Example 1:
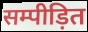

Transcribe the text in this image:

सम्पीड़ित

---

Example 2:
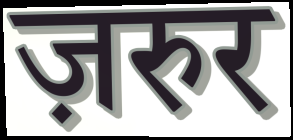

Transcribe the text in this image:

ज़रुर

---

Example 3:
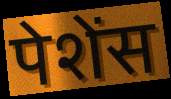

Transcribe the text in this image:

पेशेंस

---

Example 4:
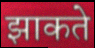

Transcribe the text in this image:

झाकते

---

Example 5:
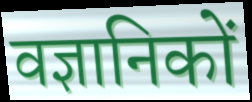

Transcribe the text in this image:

वज्ञानिकों